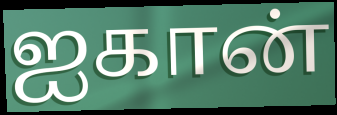
ஐகான்